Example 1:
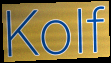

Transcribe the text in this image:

Kolf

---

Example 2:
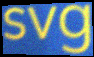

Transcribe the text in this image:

svg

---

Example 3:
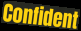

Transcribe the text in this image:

Confident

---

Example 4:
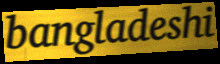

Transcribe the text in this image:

bangladeshi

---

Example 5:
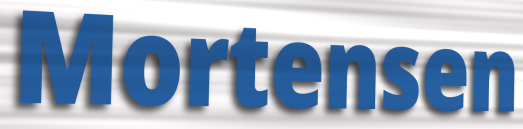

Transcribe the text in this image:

Mortensen